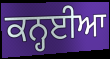
ਕਨ੍ਹਈਆ